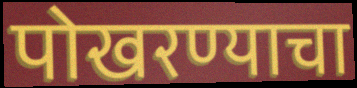
पोखरण्याचा